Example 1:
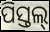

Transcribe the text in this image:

ପିସ୍ତଲ୍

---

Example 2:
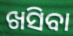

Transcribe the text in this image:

ଖସିବା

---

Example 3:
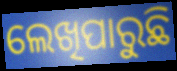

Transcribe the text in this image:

ଲେଖିପାରୁଛି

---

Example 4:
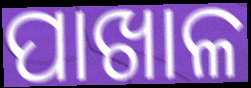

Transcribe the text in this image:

ପାଖାଳ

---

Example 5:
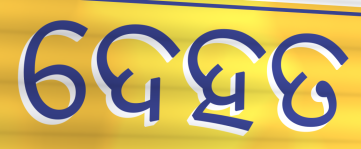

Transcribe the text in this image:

ଦେହତ